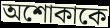
অশোকাকে